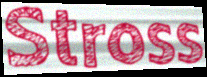
Stross